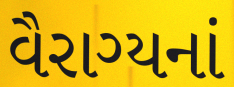
વૈરાગ્યનાં